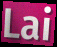
Lai